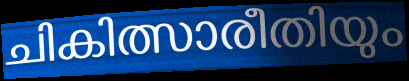
ചികിത്സാരീതിയും